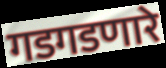
गडगडणारे